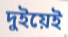
দুইয়েই